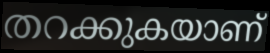
തറക്കുകയാണ്